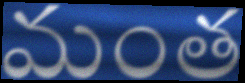
మంత